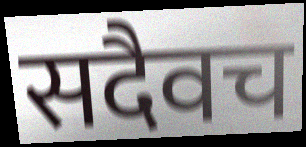
सदैवच